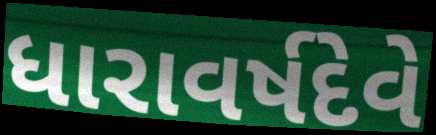
ધારાવર્ષદેવે